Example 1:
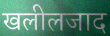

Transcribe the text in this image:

खलीलजाद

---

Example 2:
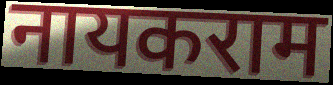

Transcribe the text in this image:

नायकराम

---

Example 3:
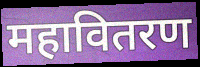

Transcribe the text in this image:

महावितरण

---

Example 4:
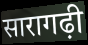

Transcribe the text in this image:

सारागढ़ी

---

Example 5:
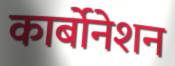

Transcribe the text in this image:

कार्बोनेशन